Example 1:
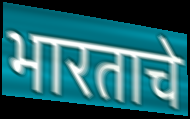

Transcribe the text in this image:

भारताचे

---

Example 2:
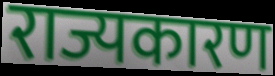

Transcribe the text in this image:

राज्यकारण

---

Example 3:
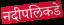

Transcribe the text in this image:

नदीपलिकडे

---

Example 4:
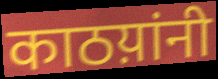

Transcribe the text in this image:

काठय़ांनी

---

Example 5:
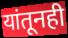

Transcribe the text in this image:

यांतूनही